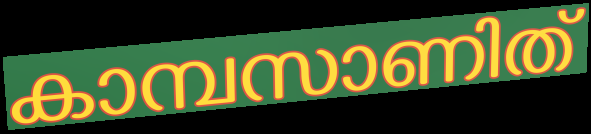
കാമ്പസാണിത്